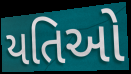
યતિઓ